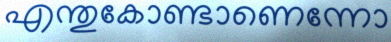
എന്തുകോണ്ടാണെന്നോ